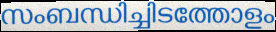
സംബന്ധിച്ചിടത്തോളം